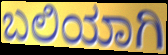
ಬಲಿಯಾಗಿ